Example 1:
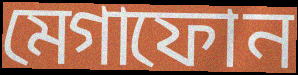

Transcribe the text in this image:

মেগাফোন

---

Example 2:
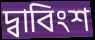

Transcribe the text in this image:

দ্বাবিংশ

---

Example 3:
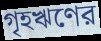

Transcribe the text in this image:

গৃহঋণের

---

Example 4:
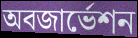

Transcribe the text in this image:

অবজার্ভেশন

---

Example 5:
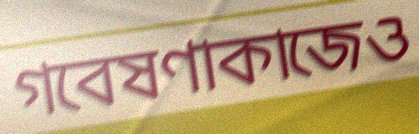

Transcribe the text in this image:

গবেষণাকাজেও